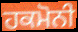
ਹਕਮੋਨੀ